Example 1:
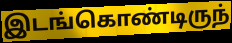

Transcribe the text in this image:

இடங்கொண்டிருந்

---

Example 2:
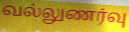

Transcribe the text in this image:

வல்லுணர்வு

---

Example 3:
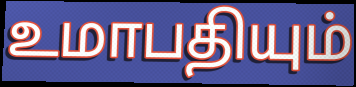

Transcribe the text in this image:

உமாபதியும்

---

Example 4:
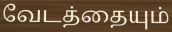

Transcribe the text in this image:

வேடத்தையும்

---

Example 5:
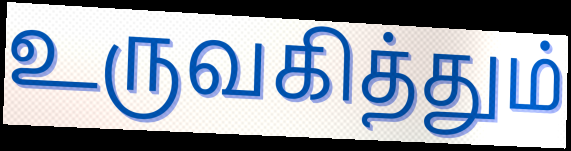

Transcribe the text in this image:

உருவகித்தும்